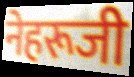
नेहरूजी